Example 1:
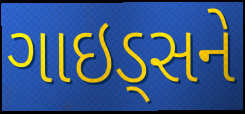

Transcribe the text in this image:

ગાઇડ્સને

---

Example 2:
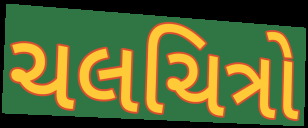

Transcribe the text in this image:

ચલચિત્રો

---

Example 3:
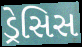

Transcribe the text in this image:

ડ્રેસિસ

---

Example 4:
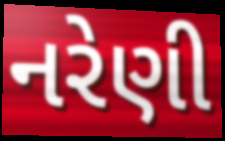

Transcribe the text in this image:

નરેણી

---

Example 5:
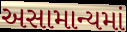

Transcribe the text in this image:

અસામાન્યમાં